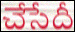
చేసేదీ